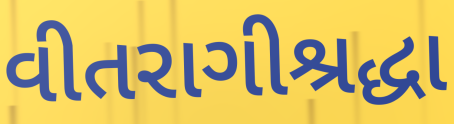
વીતરાગીશ્રદ્ધા